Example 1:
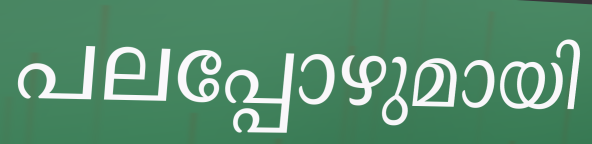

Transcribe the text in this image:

പലപ്പോഴുമായി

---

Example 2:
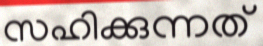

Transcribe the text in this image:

സഹിക്കുന്നത്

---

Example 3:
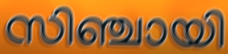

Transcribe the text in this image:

സിഞ്ചായി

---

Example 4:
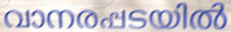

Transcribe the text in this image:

വാനരപ്പടയിൽ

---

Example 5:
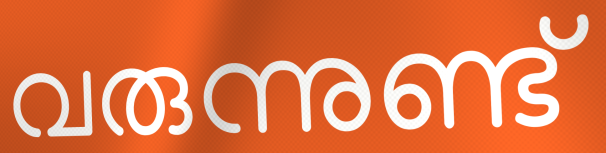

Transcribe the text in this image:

വരുന്നുണ്ട്